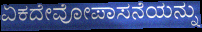
ಏಕದೇವೋಪಾಸನೆಯನ್ನು